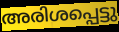
അരിശപ്പെട്ടു